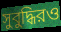
সুবুদ্ধিরও